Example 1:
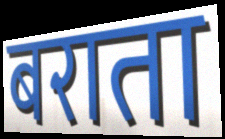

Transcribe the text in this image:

बराता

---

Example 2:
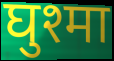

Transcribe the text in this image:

घुश्मा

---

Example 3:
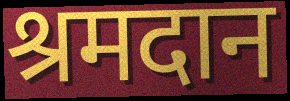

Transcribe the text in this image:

श्रमदान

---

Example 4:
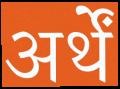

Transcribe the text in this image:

अर्थें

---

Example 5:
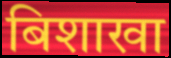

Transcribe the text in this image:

बिशाखा